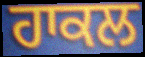
ਹਾਕਲ